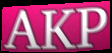
AKP